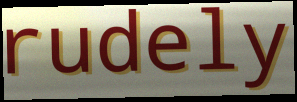
rudely